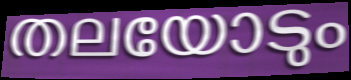
തലയോടും